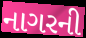
નાગરની